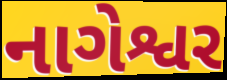
નાગેશ્વર